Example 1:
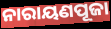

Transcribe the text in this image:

ନାରାୟଣପୂଜା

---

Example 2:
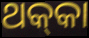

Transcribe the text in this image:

ଥକ୍‌କା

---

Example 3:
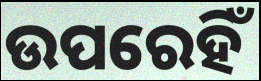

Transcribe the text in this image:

ଉପରେହିଁ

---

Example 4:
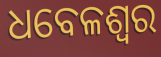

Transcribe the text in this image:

ଧବେଳଶ୍ୱର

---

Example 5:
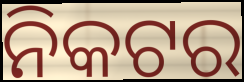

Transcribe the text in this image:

ନିକଟର